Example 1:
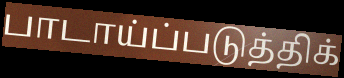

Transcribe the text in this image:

பாடாய்ப்படுத்திக்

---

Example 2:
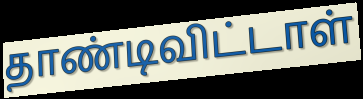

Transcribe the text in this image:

தாண்டிவிட்டாள்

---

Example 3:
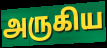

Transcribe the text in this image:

அருகிய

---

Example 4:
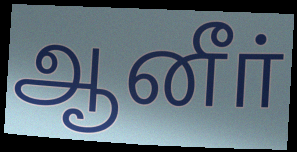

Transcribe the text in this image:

ஆனீர்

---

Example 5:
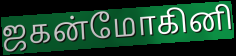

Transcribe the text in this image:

ஜகன்மோகினி